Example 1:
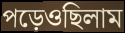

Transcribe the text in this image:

পড়েওছিলাম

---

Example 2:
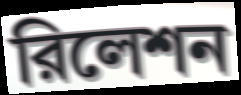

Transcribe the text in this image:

রিলেশন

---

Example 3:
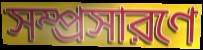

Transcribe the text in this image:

সম্প্রসারণে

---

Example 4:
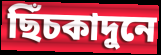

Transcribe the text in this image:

ছিঁচকাদুনে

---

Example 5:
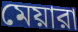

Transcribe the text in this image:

মেয়ারা